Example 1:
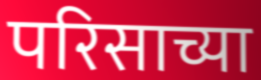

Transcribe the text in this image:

परिसाच्या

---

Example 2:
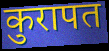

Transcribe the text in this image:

कुरापत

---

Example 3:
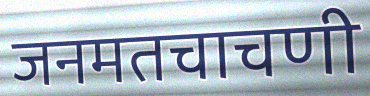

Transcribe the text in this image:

जनमतचाचणी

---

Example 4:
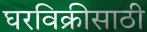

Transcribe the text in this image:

घरविक्रीसाठी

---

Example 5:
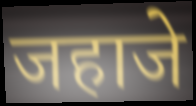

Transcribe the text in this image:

जहाजे